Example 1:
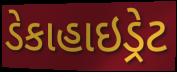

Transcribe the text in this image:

ડેકાહાઇડ્રેટ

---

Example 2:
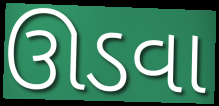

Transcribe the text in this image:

ઊડવા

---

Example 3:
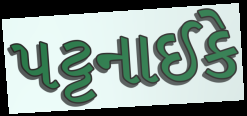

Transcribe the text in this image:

પટ્ટનાઈકે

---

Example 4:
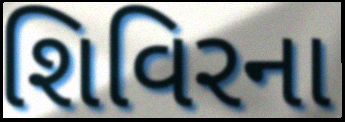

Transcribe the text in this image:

શિવિરના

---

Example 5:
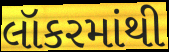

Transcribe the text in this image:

લૉકરમાંથી